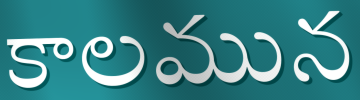
కాలమున